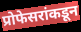
प्रोफेसरांकडून